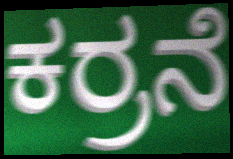
ಕರ್ರನೆ